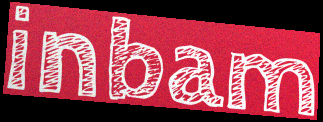
inbam